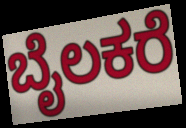
ಬೈಲಕರೆ